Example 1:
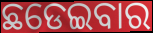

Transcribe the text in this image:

ଛଡେଇବାର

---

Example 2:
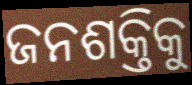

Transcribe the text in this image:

ଜନଶକ୍ତିକୁ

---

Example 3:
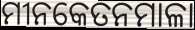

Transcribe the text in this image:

ମୀନକେତନମାଳା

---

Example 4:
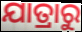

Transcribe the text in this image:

ଯାତ୍ରାରୁ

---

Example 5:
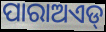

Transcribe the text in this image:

ପାରାଅଏଡ୍